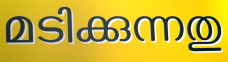
മടിക്കുന്നതു